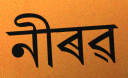
নীৰৱ